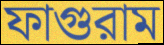
ফাগুরাম